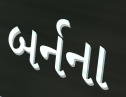
બર્નના